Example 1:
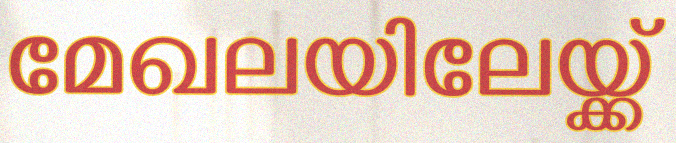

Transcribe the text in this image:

മേഖലയിലേയ്ക്ക്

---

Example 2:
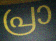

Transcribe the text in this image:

പ്രാ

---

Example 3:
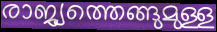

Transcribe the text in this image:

രാജ്യത്തെങ്ങുമുള്ള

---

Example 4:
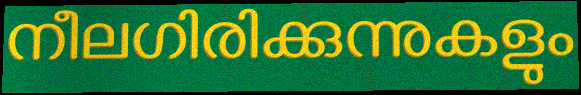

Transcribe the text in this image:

നീലഗിരിക്കുന്നുകളും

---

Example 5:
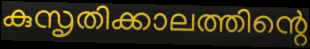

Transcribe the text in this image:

കുസൃതിക്കാലത്തിന്റെ